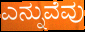
ಎನ್ನುವೆವು